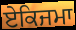
ਏਕਿਜਮਾ